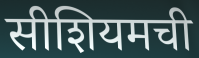
सीशियमची